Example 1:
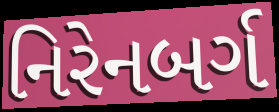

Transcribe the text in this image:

નિરેનબર્ગ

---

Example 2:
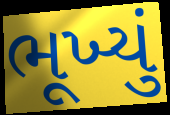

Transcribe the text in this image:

ભૂખ્યું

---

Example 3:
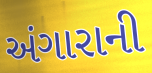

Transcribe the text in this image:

અંગારાની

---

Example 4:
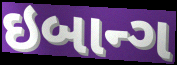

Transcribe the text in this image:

ઇબાન્ગ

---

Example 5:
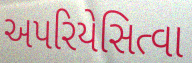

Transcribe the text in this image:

અપરિયેસિત્વા